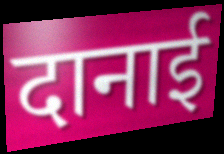
दानाई